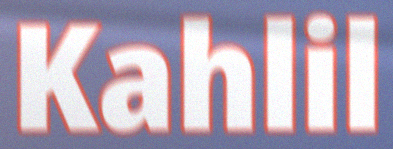
Kahlil